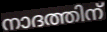
നാദത്തിന്